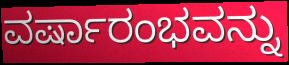
ವರ್ಷಾರಂಭವನ್ನು